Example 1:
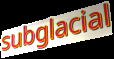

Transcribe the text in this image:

subglacial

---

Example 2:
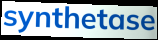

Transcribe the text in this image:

synthetase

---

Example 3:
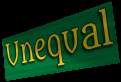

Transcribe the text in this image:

Unequal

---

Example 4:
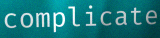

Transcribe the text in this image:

complicate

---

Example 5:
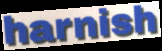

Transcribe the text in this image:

harnish